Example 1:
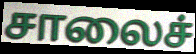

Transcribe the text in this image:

சாலைச்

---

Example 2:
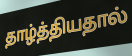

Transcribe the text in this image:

தாழ்த்தியதால்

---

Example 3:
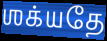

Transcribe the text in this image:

ஶக்யதே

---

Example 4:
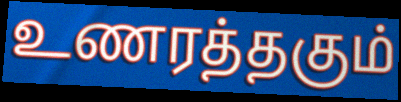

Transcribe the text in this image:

உணரத்தகும்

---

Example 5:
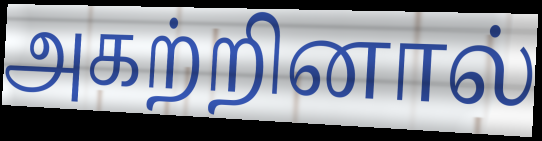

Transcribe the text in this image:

அகற்றினால்